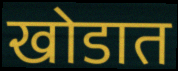
खोडात